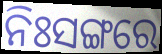
ନିଃସଙ୍ଗରେ